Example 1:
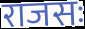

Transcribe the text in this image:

राजसः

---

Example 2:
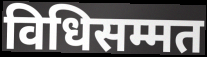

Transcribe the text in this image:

विधिसम्मत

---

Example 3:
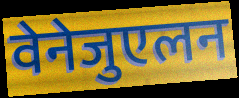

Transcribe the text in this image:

वेनेजुएलन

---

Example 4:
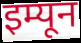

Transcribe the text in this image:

इम्‍यून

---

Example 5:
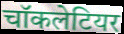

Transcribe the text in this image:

चॉकलेटियर